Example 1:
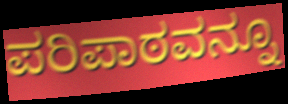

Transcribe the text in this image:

ಪರಿಪಾಠವನ್ನೂ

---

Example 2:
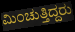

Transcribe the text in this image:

ಮಿಂಚುತ್ತಿದ್ದರು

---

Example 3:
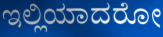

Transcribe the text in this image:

ಇಲ್ಲಿಯಾದರೋ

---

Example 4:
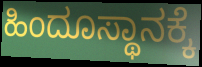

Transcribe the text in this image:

ಹಿಂದೂಸ್ಥಾನಕ್ಕೆ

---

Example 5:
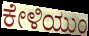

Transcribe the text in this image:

ಕೇಳಿಯುಂ